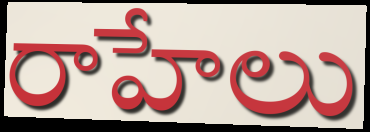
రాహేలు